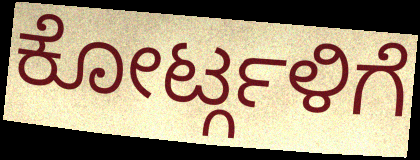
ಕೋರ್ಟ್ಗಳಿಗೆ